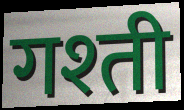
गश्‍ती